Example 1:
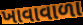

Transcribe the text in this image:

ખાવાવાળા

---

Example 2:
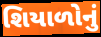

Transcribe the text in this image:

શિયાળોનું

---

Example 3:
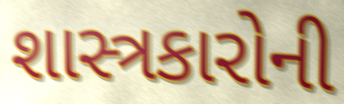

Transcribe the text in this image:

શાસ્ત્રકારોની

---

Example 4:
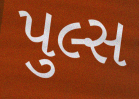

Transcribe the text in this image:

પુલ્સ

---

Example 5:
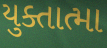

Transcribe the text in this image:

યુક્તાત્મા